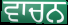
ਵਾਚਨ